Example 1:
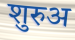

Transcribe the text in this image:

शुरुअ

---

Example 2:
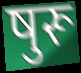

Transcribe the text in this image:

षुरू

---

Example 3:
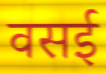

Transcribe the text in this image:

वसई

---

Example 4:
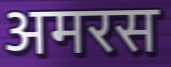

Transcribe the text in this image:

अमरस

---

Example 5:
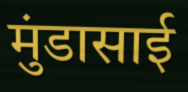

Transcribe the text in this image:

मुंडासाई